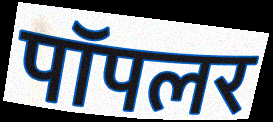
पॉपलर